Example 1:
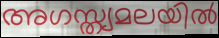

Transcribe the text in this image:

അഗസ്ത്യമലയിൽ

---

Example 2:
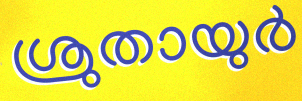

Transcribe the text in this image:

ശ്രുതായുർ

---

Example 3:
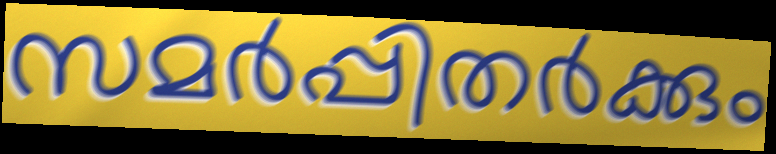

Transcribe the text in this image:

സമർപ്പിതർക്കും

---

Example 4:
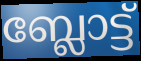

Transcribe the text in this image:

ബ്ലോട്ട്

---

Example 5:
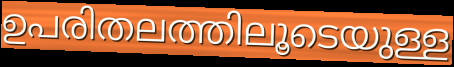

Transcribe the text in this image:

ഉപരിതലത്തിലൂടെയുള്ള